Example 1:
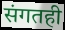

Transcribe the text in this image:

संगतही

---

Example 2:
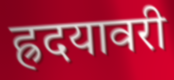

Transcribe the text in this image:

ह्रदयावरी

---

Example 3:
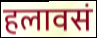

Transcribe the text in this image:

हलावसं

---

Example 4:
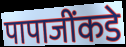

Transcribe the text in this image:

पापाजींकडे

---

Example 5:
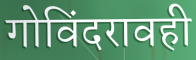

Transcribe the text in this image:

गोविंदरावही